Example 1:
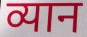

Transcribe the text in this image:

व्यान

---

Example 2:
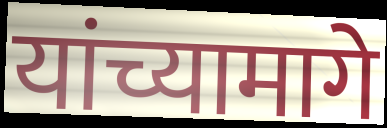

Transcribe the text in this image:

यांच्यामागे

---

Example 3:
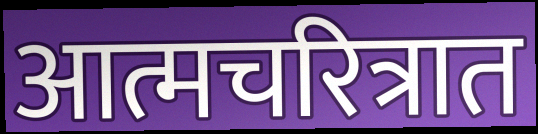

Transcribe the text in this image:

आत्मचरित्रात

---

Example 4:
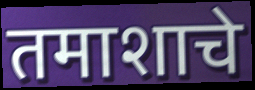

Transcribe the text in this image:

तमाशाचे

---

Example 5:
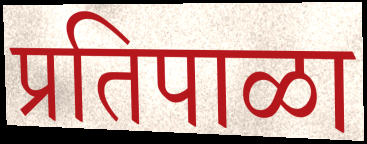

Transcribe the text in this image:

प्रतिपाळा